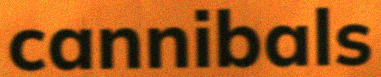
cannibals